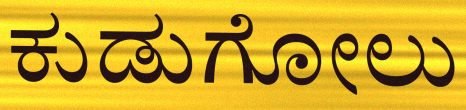
ಕುಡುಗೋಲು